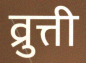
व्रुत्ती